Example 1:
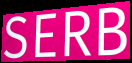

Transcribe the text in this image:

SERB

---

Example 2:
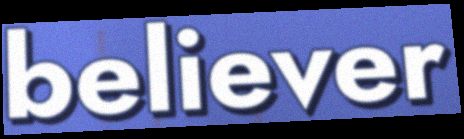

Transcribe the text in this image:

believer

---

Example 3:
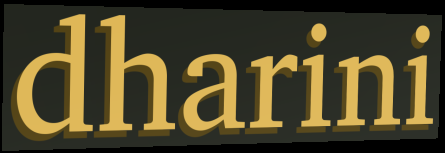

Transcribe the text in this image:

dharini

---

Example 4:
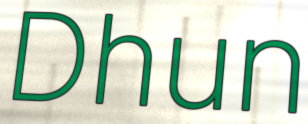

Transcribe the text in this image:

Dhun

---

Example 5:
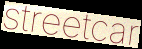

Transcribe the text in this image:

streetcar